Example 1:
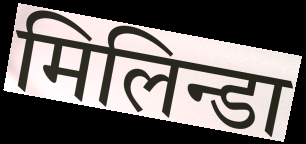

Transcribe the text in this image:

मिलिन्डा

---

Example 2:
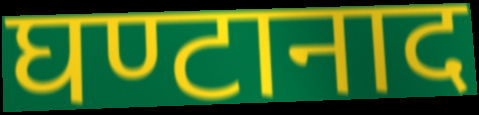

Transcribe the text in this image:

घण्टानाद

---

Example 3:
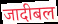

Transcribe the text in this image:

जादीबल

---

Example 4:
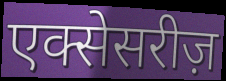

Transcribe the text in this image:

एक्सेसरीज़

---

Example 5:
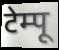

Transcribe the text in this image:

टेम्पू